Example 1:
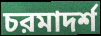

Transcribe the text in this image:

চরমাদর্শ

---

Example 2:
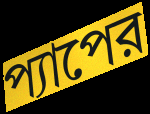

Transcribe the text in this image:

প্যাপের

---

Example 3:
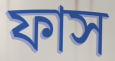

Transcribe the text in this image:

ফাস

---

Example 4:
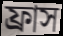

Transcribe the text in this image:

ফ্রাস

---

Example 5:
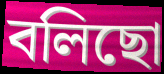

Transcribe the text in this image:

বলিছো